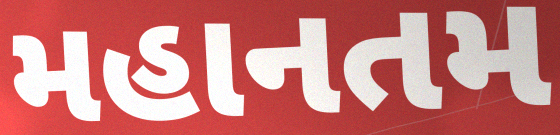
મહાનતમ